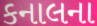
કનાલના